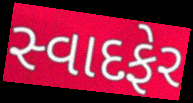
સ્વાદફેર